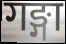
गङ्गा